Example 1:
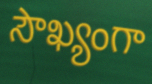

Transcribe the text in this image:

సౌఖ్యంగా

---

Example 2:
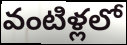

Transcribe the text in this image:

వంటిళ్లలో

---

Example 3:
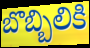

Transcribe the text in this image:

బొబ్బిలికి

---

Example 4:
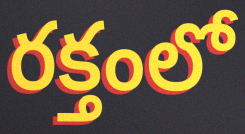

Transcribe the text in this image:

రక్తంలో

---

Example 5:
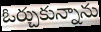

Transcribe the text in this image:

ఓర్చుకున్నాను